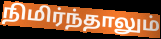
நிமிர்ந்தாலும்